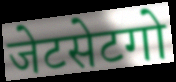
जेटसेटगो